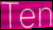
Ten